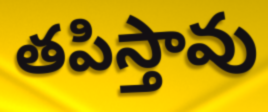
తపిస్తావు